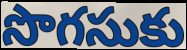
సొగసుకు